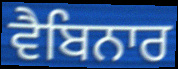
ਵੈਬਿਨਾਰ